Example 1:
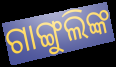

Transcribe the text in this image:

ଗାଙ୍ଗୁଲିଙ୍କ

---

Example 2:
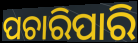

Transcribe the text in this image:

ପଚାରିପାରି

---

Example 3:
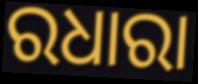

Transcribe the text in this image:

ରଧାରା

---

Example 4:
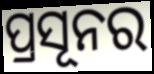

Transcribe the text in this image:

ପ୍ରସୂନର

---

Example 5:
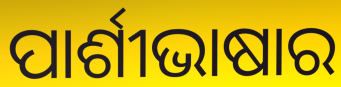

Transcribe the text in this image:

ପାର୍ଶୀଭାଷାର